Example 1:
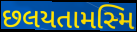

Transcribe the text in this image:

છલયતામસ્મિ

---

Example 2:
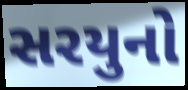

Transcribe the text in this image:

સરયુનો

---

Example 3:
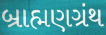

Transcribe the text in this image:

બ્રાહ્મણગ્રંથ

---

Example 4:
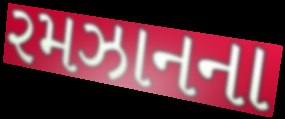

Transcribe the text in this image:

રમઝાનના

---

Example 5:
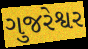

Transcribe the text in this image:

ગુજરેશ્વર